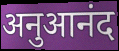
अनुआनंद